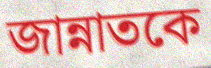
জান্নাতকে